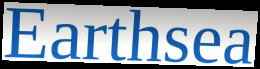
Earthsea